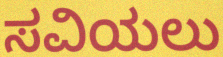
ಸವಿಯಲು